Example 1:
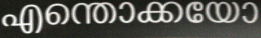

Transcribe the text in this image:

എന്തൊക്കയോ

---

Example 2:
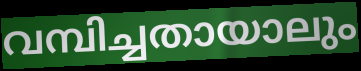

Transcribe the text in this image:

വമ്പിച്ചതായാലും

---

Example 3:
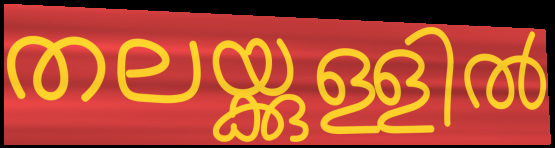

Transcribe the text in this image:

തലയ്ക്കുള്ളിൽ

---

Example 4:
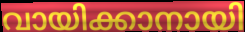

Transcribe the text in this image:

വായിക്കാനായി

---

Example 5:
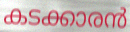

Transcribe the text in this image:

കടക്കാരൻ